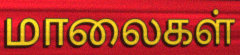
மாலைகள்